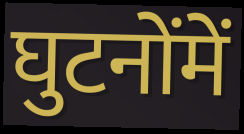
घुटनोंमें